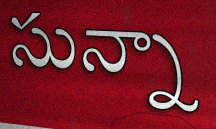
సున్నా